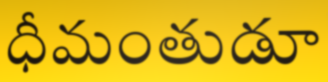
ధీమంతుడూ